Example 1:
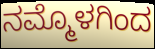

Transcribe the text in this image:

ನಮ್ಮೊಳಗಿಂದ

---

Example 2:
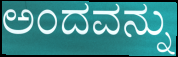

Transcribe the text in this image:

ಅಂದವನ್ನು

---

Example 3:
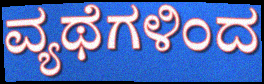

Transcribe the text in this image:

ವ್ಯಥೆಗಳಿಂದ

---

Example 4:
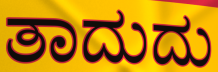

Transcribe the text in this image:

ತಾದುದು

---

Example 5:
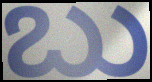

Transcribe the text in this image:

ಬು